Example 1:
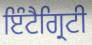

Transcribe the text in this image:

ਇੰਟੈਗ੍ਰਿਟੀ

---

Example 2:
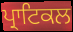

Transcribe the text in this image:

ਪ੍ਰਾਟਿਕਲ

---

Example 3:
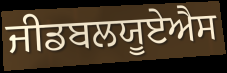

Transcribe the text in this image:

ਜੀਡਬਲਯੂਏਐਸ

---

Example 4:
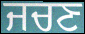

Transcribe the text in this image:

ਜਚਣ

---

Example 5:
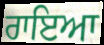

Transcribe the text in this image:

ਰਾਇਆ